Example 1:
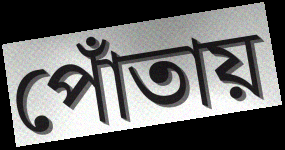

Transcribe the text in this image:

পোঁতায়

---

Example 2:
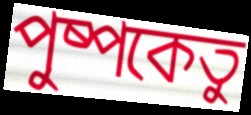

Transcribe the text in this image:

পুষ্পকেতু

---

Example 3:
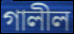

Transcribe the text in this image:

গালীল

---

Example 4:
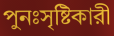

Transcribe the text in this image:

পুনঃসৃষ্টিকারী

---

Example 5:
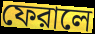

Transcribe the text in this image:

ফেরালে